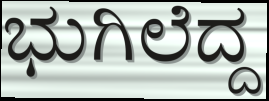
ಭುಗಿಲೆದ್ದ